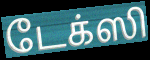
டேக்ஸி